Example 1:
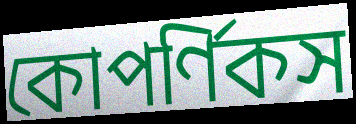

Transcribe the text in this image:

কোপর্ণিকস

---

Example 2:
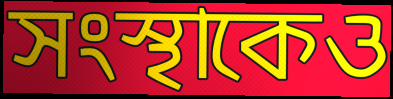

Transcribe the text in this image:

সংস্থাকেও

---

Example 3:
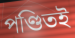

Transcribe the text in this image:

পণ্ডিতই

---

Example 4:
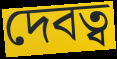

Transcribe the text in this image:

দেবত্ব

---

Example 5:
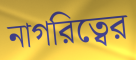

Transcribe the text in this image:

নাগরিত্বের